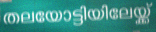
തലയോട്ടിയിലേയ്ക്ക്